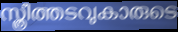
സ്ത്രീത്തടവുകാരുടെ